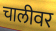
चालीवर